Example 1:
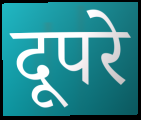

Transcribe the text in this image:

दूपरे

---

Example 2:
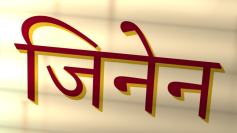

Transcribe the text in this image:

जिनेन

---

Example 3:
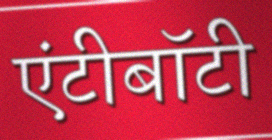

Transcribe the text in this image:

एंटीबॉटी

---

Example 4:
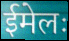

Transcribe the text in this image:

ईमेलः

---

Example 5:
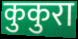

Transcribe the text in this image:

कुकुरा